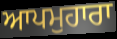
ਆਪਮੁਹਾਰਾ